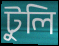
টুলি